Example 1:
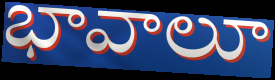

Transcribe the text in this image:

భావాలూ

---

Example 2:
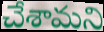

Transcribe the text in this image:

చేశామని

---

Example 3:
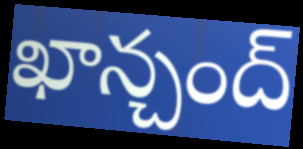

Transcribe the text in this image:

ఖాన్చంద్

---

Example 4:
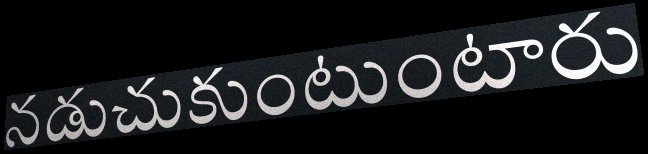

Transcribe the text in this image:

నడుచుకుంటుంటారు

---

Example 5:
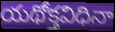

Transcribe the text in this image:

యథోక్తవిధినా